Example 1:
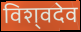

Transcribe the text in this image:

विश्वदेव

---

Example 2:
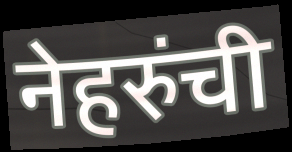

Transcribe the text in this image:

नेहरुंची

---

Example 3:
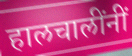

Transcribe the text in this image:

हालचालींनीं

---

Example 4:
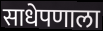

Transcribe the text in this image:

साधेपणाला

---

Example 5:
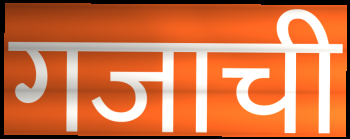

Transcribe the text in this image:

गजाची